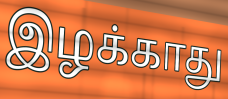
இழக்காது